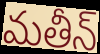
మతీన్